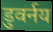
डुवर्नय